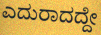
ಎದುರಾದದ್ದೇ